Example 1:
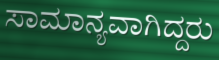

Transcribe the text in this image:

ಸಾಮಾನ್ಯವಾಗಿದ್ದರು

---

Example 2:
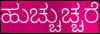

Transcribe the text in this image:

ಹುಚ್ಚುಚ್ಚರೆ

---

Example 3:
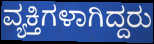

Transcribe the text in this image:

ವ್ಯಕ್ತಿಗಳಾಗಿದ್ದರು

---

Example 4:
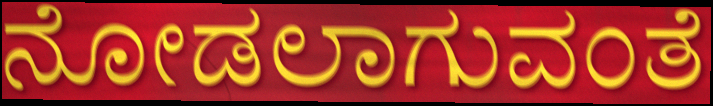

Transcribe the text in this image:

ನೋಡಲಾಗುವಂತೆ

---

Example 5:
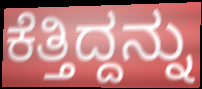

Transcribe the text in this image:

ಕೆತ್ತಿದ್ದನ್ನು